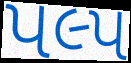
પલ્પ